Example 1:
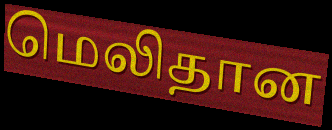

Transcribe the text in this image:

மெலிதான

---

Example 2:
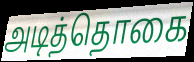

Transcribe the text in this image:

அடித்தொகை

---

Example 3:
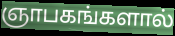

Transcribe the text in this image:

ஞாபகங்களால்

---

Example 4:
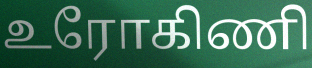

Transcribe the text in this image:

உரோகிணி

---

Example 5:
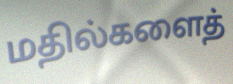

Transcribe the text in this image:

மதில்களைத்